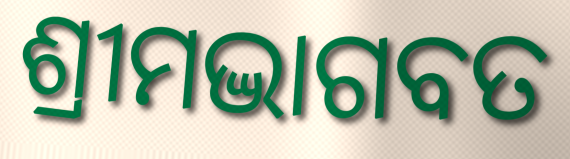
ଶ୍ରୀମଦ୍ଭାଗବତ